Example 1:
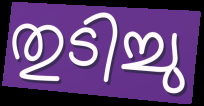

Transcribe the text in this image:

തുടിച്ചു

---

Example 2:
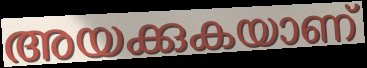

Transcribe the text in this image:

അയക്കുകയാണ്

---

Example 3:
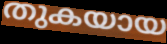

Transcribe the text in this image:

തുകയായ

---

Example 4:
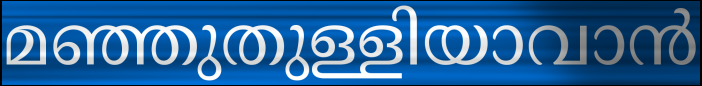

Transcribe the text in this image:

മഞ്ഞുതുള്ളിയാവാൻ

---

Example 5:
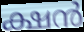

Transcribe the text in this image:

ക്ഷൻ